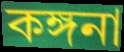
কঙ্গনা